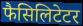
फैसिलिटेटर